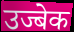
उज्बेक